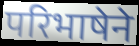
परिभाषेने